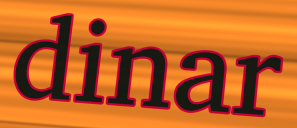
dinar